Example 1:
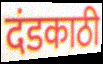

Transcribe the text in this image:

दंडकाठी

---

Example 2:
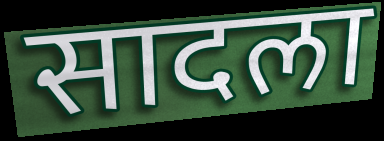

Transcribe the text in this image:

सादला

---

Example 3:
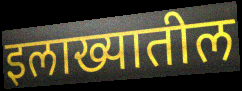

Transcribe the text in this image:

इलाख्यातील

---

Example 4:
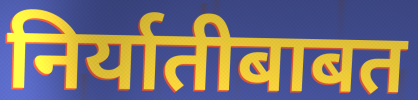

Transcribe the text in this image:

निर्यातीबाबत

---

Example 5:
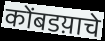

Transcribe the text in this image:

कोंबडय़ाचे